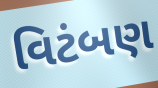
વિટંબણ